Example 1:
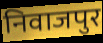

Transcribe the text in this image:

निवाजपुर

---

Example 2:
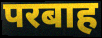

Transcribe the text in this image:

परबाह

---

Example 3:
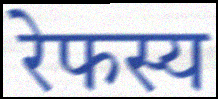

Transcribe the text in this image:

रेफस्य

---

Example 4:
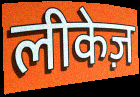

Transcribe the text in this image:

लीकेज़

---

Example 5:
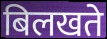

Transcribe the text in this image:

बिलखते